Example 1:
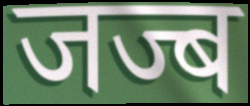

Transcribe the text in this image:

जज्ब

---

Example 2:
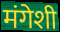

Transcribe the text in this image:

मंगेशी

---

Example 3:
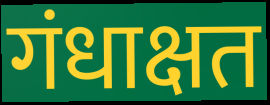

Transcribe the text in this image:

गंधाक्षत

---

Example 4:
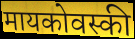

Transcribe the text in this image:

मायकोवस्की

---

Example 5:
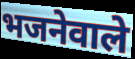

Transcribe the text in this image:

भजनेवाले